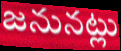
జనునట్లు